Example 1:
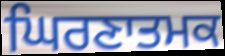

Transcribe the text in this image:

ਘਿਰਣਾਤਮਕ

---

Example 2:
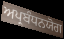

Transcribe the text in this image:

ਅਪ੍ਰਬੰਧਨਯੋਗ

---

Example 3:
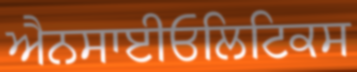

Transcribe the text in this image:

ਐਨਸਾਈਓਲਿਟਿਕਸ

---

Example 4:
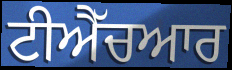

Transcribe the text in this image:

ਟੀਐੱਚਆਰ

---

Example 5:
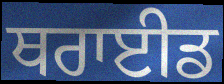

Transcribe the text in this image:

ਥਰਾਈਡ